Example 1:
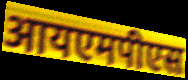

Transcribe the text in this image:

आयएमपीएस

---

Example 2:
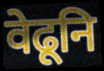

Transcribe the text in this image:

वेढूनि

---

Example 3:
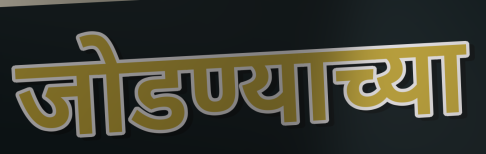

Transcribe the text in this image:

जोडण्याच्या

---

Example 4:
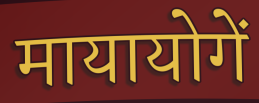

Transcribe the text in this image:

मायायोगें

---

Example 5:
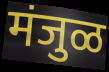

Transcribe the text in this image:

मंजुळ